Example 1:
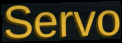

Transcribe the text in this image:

Servo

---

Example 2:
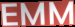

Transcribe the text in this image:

EMM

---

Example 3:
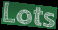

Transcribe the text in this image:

Lots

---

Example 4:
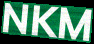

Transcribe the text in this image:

NKM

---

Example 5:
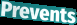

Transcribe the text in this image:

Prevents